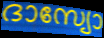
ദാസ്യോ